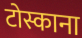
टोस्काना